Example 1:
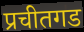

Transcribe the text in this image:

प्रचीतगड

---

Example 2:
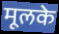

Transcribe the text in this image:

मूलके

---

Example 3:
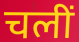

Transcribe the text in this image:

चलीं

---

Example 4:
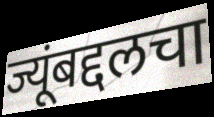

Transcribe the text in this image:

ज्यूंबद्दलचा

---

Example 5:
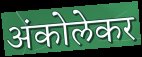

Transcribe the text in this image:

अंकोलेकर